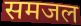
समजल